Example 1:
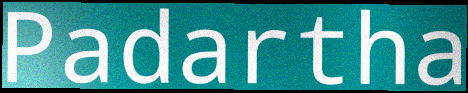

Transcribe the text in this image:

Padartha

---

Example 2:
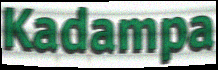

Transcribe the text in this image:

Kadampa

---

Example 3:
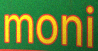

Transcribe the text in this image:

moni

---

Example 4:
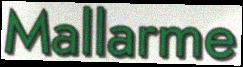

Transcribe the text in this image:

Mallarme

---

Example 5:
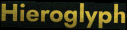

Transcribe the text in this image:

Hieroglyph